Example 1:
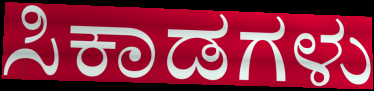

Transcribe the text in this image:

ಸಿಕಾಡಗಳು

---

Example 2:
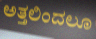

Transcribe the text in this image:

ಅತ್ತಲಿಂದಲೂ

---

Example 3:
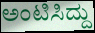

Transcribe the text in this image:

ಅಂಟಿಸಿದ್ದು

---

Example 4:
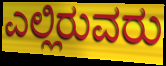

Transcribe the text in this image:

ಎಲ್ಲಿರುವರು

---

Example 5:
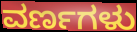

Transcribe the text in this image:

ವರ್ಣಗಳು